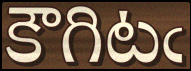
కౌగిటఁ